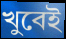
খুবেই